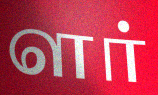
ளர்